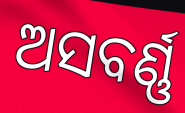
ଅସବର୍ଣ୍ଣ